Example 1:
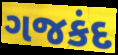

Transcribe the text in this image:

ગજકંદ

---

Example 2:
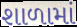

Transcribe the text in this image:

શાળામાં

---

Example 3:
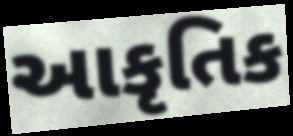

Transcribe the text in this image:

આકૃતિક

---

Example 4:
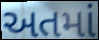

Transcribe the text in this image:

અતમાં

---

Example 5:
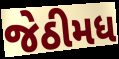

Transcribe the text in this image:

જેઠીમધ